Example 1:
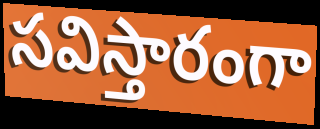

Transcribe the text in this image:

సవిస్తారంగా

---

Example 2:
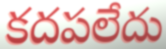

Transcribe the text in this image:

కదపలేదు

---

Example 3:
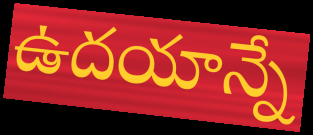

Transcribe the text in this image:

ఉదయాన్నే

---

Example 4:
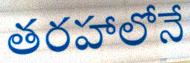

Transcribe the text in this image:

తరహాలోనే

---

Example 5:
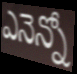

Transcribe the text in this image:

ఎనెన్నో